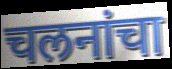
चलनांचा